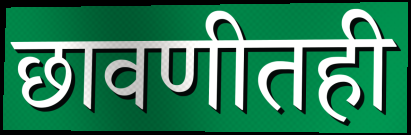
छावणीतही